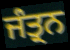
ਜੰਤ੍ਰਨ